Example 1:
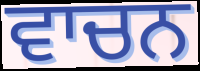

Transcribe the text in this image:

ਵਾਚਨ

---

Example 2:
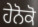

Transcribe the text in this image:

ਹੇਨੋਕੋ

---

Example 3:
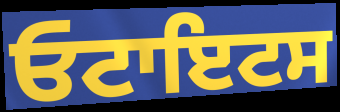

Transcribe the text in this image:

ਓਟਾਇਟਸ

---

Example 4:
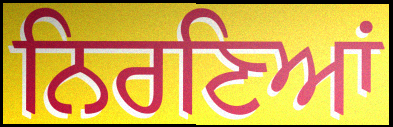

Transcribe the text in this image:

ਨਿਰਣਿਆਂ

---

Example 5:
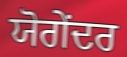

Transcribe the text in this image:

ਯੋਗੇਂਦਰ